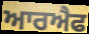
ਆਰਐਫ